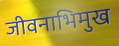
जीवनाभिमुख